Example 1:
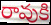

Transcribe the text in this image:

రావుకి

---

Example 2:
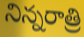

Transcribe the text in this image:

నిన్నరాత్రి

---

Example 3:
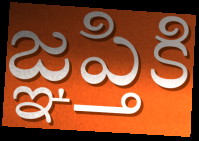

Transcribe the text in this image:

జ్ఞప్తికి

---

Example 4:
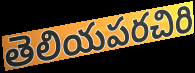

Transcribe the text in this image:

తెలియపరచిరి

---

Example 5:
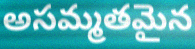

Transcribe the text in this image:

అసమ్మతమైన